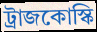
ট্রাজকোস্কি